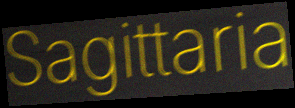
Sagittaria